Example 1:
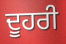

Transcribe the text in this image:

ਦੂਹਰੀ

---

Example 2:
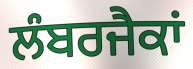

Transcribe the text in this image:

ਲੰਬਰਜੈਕਾਂ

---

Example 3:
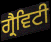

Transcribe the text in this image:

ਗ੍ਰੈਵਿਟੀ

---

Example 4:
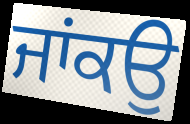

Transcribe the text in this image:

ਜਾਂਕਉ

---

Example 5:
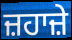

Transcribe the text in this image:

ਜ਼ਹਾਜ਼ੇ